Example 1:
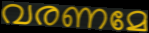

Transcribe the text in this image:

വരണമേ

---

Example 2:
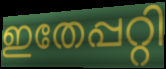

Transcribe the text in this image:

ഇതേപ്പറ്റി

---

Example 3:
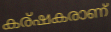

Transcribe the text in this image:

കര്ഷകരാണ്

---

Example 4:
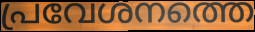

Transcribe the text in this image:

പ്രവേശനത്തെ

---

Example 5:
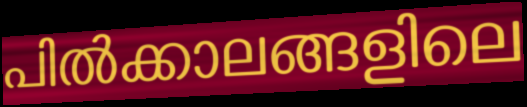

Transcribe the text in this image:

പിൽക്കാലങ്ങളിലെ